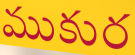
ముకుర